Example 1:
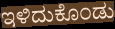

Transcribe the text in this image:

ಇಳಿದುಕೊಂಡು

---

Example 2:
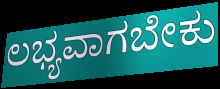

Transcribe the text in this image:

ಲಭ್ಯವಾಗಬೇಕು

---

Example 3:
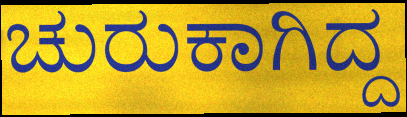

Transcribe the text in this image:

ಚುರುಕಾಗಿದ್ದ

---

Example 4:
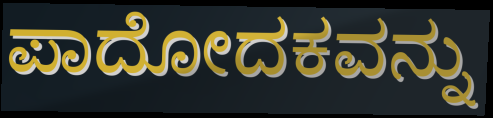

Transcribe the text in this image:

ಪಾದೋದಕವನ್ನು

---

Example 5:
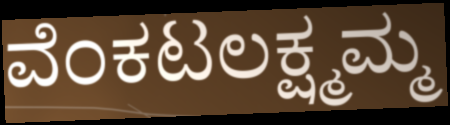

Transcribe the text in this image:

ವೆಂಕಟಲಕ್ಷ್ಮಮ್ಮ